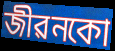
জীৱনকো